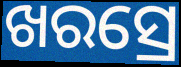
ଖରସ୍ରେ